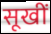
सूखीं